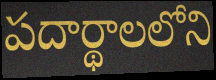
పదార్థాలలోని